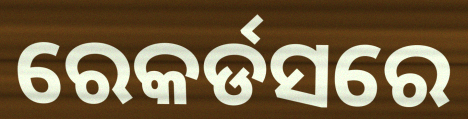
ରେକର୍ଡସରେ